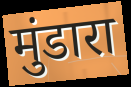
मुंडारा